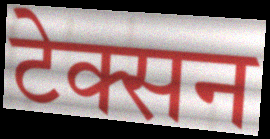
टेक्सन